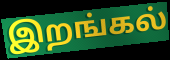
இறங்கல்